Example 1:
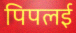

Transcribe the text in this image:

पिपलई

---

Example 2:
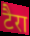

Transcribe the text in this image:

टैरा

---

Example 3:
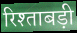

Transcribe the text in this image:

रिश्ताबड़ी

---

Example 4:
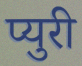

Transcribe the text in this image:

प्युरी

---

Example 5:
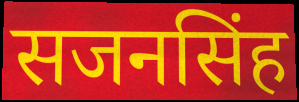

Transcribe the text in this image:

सजनसिंह